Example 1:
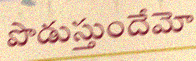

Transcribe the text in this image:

పొడుస్తుందేమో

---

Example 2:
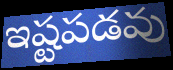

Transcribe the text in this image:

ఇష్టపడవు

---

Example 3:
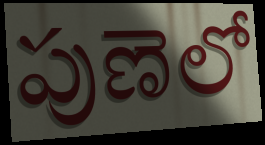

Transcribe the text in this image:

పుణెలో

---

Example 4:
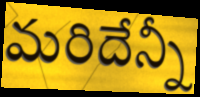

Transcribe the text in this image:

మరిదేన్నీ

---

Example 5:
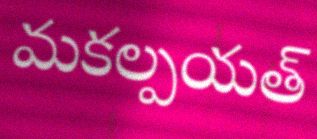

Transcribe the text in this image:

మకల్పయత్